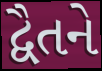
દ્વૈતને